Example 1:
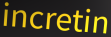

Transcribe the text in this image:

incretin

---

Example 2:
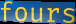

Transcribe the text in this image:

fours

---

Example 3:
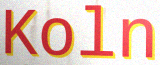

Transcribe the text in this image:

Koln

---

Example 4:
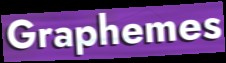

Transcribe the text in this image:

Graphemes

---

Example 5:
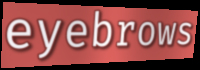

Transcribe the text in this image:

eyebrows